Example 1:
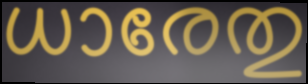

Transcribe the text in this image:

ധാരേതു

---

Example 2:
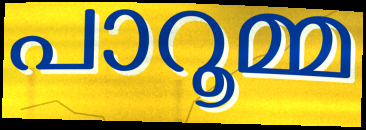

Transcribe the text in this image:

പാറൂമ്മ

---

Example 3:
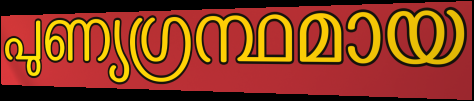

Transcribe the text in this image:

പുണ്യഗ്രന്ഥമായ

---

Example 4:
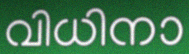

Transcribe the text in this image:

വിധിനാ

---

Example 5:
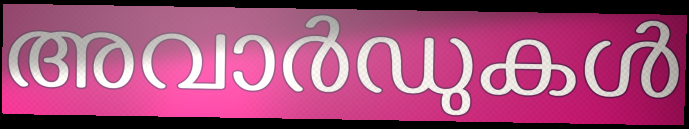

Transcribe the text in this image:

അവാർഡുകൾ